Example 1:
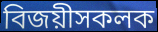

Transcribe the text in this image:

বিজয়ীসকলক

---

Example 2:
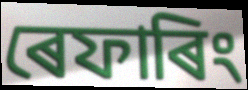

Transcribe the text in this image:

ৰেফাৰিং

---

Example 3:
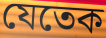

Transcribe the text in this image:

যেতেক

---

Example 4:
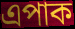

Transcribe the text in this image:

এপাক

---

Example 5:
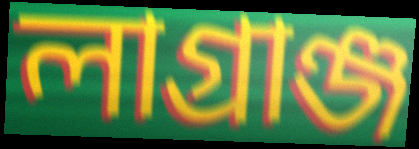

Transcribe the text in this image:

লাগ্ৰাঞ্জ